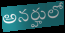
అనర్హులో